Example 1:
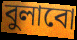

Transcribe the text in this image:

বুলাবো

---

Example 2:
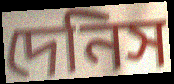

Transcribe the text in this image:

দেনিস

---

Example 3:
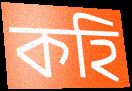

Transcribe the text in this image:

কহি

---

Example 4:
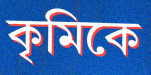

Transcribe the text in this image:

কৃমিকে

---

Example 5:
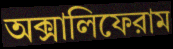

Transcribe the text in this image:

অক্সালিফেরাম